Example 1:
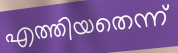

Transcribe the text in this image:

എത്തിയതെന്ന്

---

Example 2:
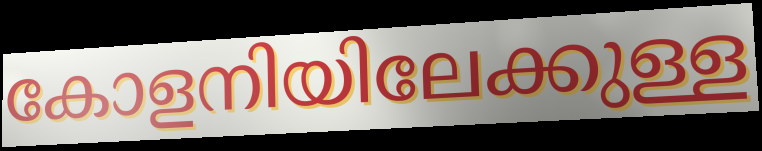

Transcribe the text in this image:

കോളനിയിലേക്കുള്ള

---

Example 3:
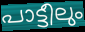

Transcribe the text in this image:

പാട്ടീലും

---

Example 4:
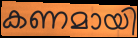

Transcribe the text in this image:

കണമായി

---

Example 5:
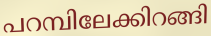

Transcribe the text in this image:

പറമ്പിലേക്കിറങ്ങി